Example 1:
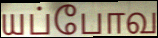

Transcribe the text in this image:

யப்போவ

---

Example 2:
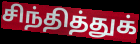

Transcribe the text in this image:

சிந்தித்துக்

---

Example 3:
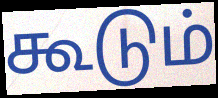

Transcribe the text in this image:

கூடும்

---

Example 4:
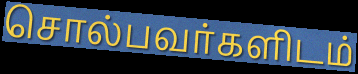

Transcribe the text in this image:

சொல்பவர்களிடம்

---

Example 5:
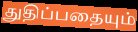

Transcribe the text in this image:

துதிப்பதையும்